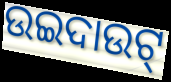
ଉଇଦାଉଟ୍